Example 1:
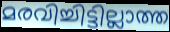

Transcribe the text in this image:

മരവിച്ചിട്ടില്ലാത്ത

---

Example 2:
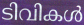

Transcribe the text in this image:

ടിവികൾ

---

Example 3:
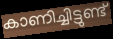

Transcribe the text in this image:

കാണിച്ചിട്ടുണ്ട്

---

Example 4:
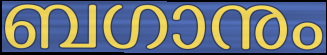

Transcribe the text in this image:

ബഗാനും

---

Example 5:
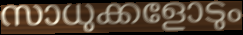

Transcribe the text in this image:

സാധുക്കളോടും